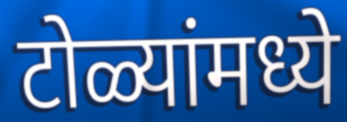
टोळ्यांमध्ये